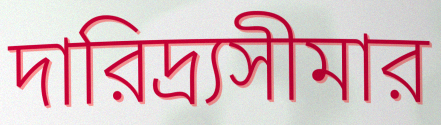
দারিদ্র্যসীমার